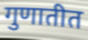
गुणातीत